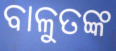
ବାଳୁତଙ୍କ